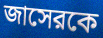
জাসেরকে